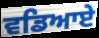
ਵਡਿਆਏ